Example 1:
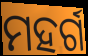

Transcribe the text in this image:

ମହର୍ଗ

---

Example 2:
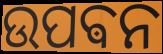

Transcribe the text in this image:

ଉପଵନ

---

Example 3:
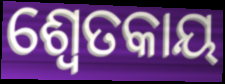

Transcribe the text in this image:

ଶ୍ବେତକାୟ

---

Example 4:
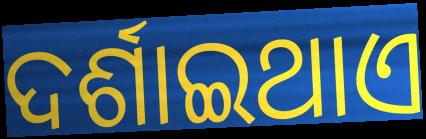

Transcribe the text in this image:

ଦର୍ଶାଇଥାଏ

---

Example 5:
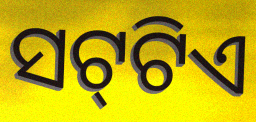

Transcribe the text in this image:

ସଟ୍‍ଟିଏ